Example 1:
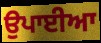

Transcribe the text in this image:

ਉਪਾਈਆ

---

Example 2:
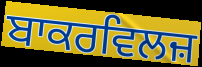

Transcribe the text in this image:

ਬਾਕਰਵਿਲਜ਼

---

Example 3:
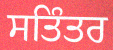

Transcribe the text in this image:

ਸਤਿੰਤਰ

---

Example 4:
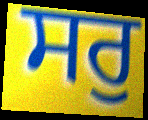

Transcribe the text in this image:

ਸਰੁ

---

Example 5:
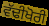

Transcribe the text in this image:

ਵੱਢੀਖੋਰੀ